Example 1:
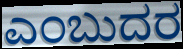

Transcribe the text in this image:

ಎಂಬುದರ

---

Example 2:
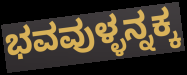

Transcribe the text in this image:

ಭವವುಳ್ಳನ್ನಕ್ಕ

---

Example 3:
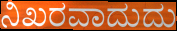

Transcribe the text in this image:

ನಿಖರವಾದುದು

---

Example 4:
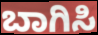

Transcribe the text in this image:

ಬಾಗಿಸಿ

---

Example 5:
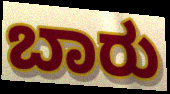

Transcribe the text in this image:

ಬಾರು